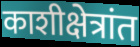
काशीक्षेत्रांत